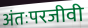
अंतःपरजीवी